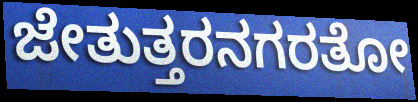
ಜೇತುತ್ತರನಗರತೋ